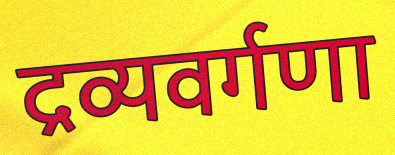
द्रव्यवर्गणा